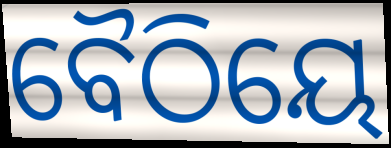
ବୈଠିୟେ